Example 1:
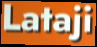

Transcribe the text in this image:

Lataji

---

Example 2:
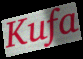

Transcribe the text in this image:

Kufa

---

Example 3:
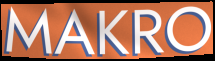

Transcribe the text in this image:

MAKRO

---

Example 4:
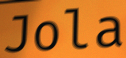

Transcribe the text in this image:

Jola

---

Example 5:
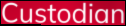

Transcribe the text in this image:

Custodian